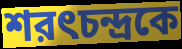
শরৎচন্দ্রকে